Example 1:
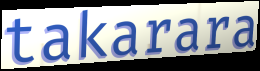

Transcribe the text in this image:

takarara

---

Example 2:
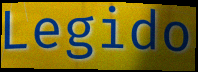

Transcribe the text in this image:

Legido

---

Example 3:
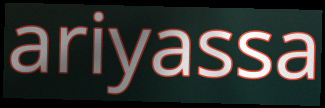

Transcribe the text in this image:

ariyassa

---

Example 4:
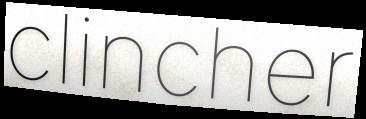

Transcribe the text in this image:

clincher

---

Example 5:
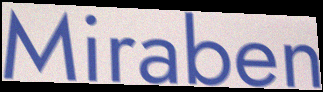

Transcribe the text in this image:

Miraben